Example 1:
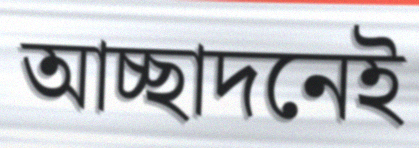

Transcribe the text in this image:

আচ্ছাদনেই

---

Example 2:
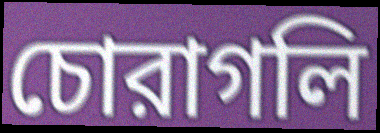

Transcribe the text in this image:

চোরাগলি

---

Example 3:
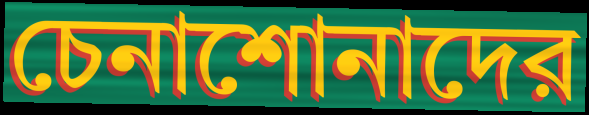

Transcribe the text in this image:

চেনাশোনাদের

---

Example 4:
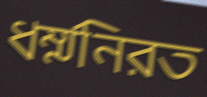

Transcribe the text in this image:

ধর্ম্মনিরত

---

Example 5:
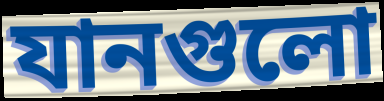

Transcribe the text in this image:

যানগুলো